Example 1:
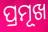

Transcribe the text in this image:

ପ୍ରମୂଖ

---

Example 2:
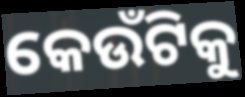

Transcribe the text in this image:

କେଉଁଟିକୁ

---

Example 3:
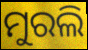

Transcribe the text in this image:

ମୁରଲି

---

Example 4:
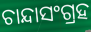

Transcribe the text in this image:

ଚାନ୍ଦାସଂଗ୍ରହ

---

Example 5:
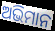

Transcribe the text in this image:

ଅଭିମାନ